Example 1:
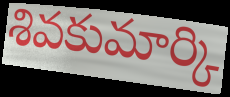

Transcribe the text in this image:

శివకుమార్కి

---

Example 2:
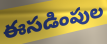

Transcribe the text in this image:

ఈసడింపుల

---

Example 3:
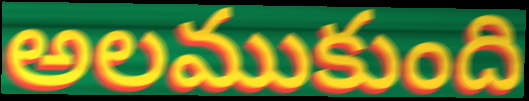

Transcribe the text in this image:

అలముకుంది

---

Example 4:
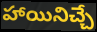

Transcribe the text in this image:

హాయినిచ్చే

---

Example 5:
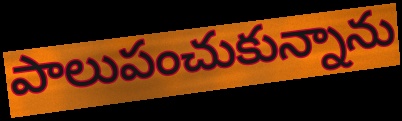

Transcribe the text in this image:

పాలుపంచుకున్నాను